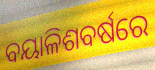
ବୟାଳିଶବର୍ଷରେ